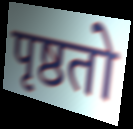
पृष्ठतो